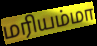
மரியம்மா